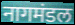
नागमंडल